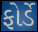
ફોર્ડે